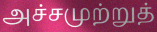
அச்சமுற்றுத்